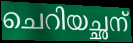
ചെറിയച്ഛന്